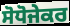
ਸੋਧੋਜੇਕਰ